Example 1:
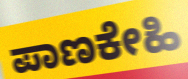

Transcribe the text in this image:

ಪಾಣಕೇಹಿ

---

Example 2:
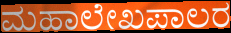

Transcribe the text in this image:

ಮಹಾಲೇಖಪಾಲರ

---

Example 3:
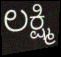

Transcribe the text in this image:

ಲಕ್ಷ್ಮಿ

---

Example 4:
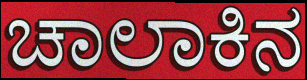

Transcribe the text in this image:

ಚಾಲಾಕಿನ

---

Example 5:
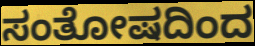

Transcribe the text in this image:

ಸಂತೋಷದಿಂದ